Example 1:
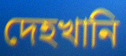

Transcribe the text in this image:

দেহখানি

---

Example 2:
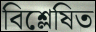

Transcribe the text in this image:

বিশ্লেষিত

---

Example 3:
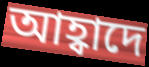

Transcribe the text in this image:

আহ্বাদে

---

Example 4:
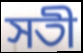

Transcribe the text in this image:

সতী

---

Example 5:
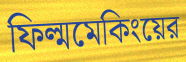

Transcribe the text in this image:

ফিল্মমেকিংয়ের